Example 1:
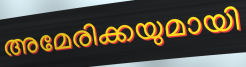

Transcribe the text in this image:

അമേരിക്കയുമായി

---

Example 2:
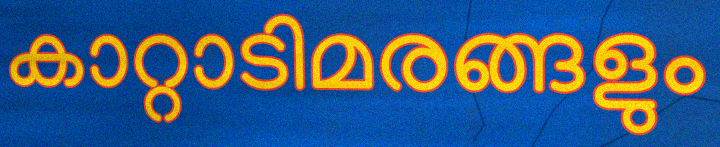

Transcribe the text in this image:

കാറ്റാടിമരങ്ങളും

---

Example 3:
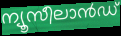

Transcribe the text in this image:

ന്യൂസീലാൻഡ്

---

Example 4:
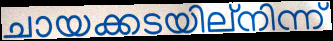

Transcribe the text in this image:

ചായക്കടയില്നിന്ന്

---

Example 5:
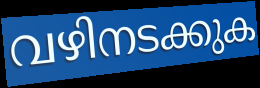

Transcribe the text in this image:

വഴിനടക്കുക